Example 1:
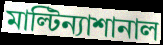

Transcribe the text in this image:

মাল্টিন্যাশানাল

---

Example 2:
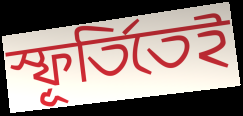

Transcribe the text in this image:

স্ফূর্তিতেই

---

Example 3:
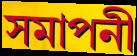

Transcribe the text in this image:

সমাপনী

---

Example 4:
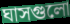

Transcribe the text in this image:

ঘাসগুলো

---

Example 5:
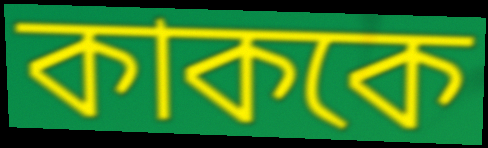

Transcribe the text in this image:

কাককে